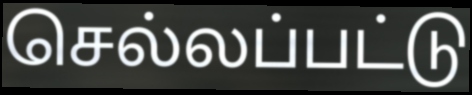
செல்லப்பட்டு